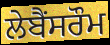
ਲੇਬੈਂਸਰੌਮ